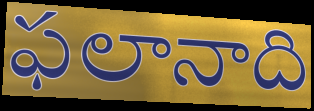
ఫలానాది